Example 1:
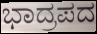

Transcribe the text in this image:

ಭಾದ್ರಪದ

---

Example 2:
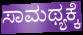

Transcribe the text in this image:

ಸಾಮಥ್ಯಕ್ಕೆ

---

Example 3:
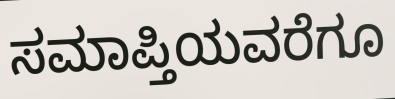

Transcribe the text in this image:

ಸಮಾಪ್ತಿಯವರೆಗೂ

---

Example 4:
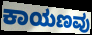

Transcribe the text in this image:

ಕಾಯಣವು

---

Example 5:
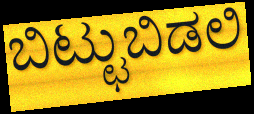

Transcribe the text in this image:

ಬಿಟ್ಟುಬಿಡಲಿ